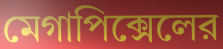
মেগাপিক্সেলের